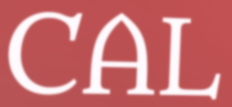
CAL